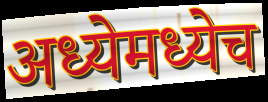
अध्येमध्येच